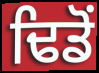
ਢਿਡੋਂ